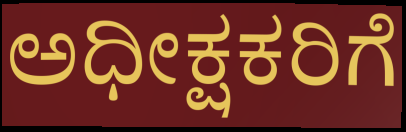
ಅಧೀಕ್ಷಕರಿಗೆ